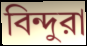
বিন্দুরা